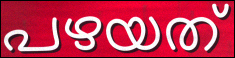
പഴയത്